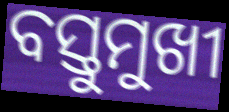
ବସ୍ତୁମୁଖୀ